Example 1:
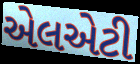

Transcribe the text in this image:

એલએટી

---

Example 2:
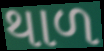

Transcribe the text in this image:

થાળ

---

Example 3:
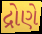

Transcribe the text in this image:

દ્રોણે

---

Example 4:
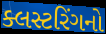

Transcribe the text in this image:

ક્લસ્ટરિંગનો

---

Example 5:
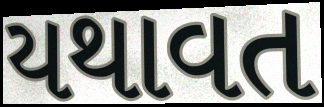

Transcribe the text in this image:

યથાવત